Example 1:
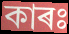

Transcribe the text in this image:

কাৰঃ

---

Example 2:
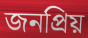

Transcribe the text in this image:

জনপ্ৰিয়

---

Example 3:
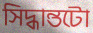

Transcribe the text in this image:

সিদ্ধান্তটো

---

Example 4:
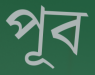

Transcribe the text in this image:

পূব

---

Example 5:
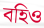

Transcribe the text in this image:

বহিও